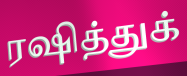
ரஷித்துக்